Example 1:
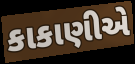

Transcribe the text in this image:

કાકાણીએ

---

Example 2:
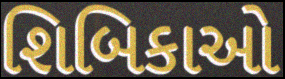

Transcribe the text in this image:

શિબિકાઓ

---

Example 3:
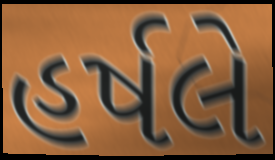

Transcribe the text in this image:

હર્ષલે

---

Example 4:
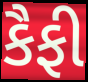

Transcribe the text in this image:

કૈફી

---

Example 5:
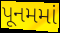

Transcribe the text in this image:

પૂનમમાં